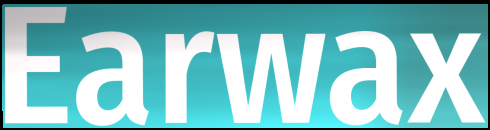
Earwax